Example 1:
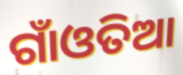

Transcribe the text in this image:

ଗାଁଓତିଆ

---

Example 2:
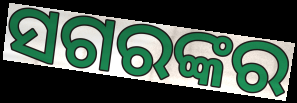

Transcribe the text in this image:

ସଗରଙ୍କର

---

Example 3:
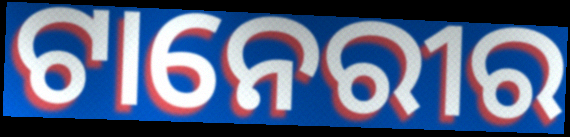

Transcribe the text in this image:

ଟାନେରୀର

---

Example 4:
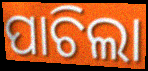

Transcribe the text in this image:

ପାଚିଲା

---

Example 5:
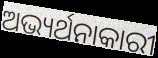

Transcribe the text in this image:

ଅଭ୍ୟର୍ଥନାକାରୀ